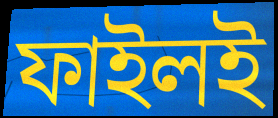
ফাইলই